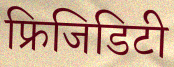
फ्रिजिडिटी